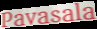
Pavasala